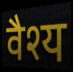
वैश्य